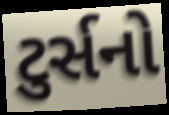
ટુર્સનો